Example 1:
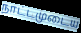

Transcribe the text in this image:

நாட்டமுடைய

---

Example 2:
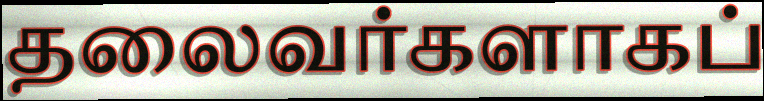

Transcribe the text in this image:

தலைவர்களாகப்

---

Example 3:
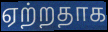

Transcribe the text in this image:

ஏற்றதாக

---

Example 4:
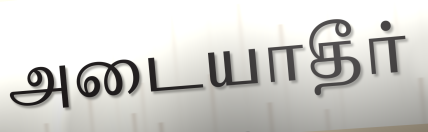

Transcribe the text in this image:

அடையாதீர்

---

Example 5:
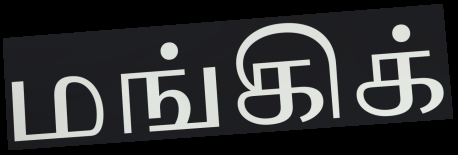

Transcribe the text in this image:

மங்கிக்